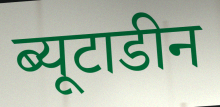
ब्यूटाडीन